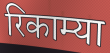
रिकाम्या